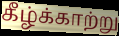
கீழ்க்காற்று